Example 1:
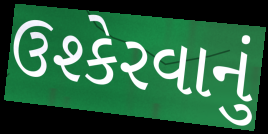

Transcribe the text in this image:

ઉશ્કેરવાનું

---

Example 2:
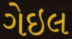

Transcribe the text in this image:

ગેઇલ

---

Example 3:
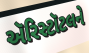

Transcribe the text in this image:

ઍરિસ્ટૉટલને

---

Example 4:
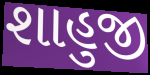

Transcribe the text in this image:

શાહુજી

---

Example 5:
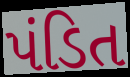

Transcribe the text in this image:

પંડિત